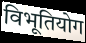
विभूतियोग